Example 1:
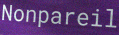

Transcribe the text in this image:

Nonpareil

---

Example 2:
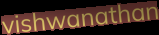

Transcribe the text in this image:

vishwanathan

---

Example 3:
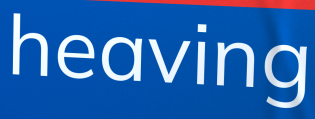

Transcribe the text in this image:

heaving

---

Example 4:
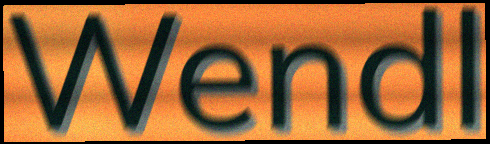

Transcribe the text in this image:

Wendl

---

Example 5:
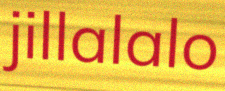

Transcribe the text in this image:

jillalalo